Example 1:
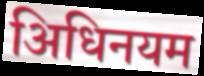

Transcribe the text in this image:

अिधिनयम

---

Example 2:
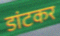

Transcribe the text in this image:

डांटकर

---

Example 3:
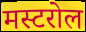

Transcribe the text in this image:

मस्टरोल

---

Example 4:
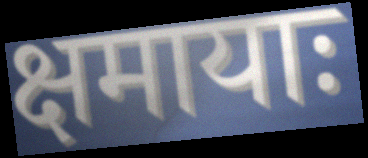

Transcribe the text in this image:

क्षमायाः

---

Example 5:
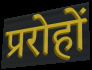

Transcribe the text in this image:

प्ररोहों